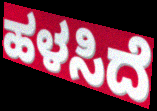
ಹಳಸಿದೆ